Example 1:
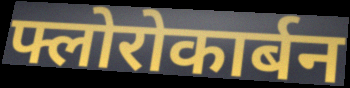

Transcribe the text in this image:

फ्लोरोकार्बन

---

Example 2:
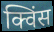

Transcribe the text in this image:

क्विंस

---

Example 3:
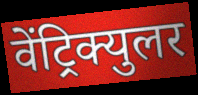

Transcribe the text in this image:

वेंट्रिक्युलर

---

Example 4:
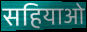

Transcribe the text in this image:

सहियाओ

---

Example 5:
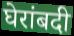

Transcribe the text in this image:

घेरांबदी